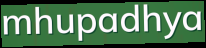
mhupadhya